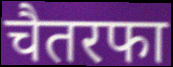
चैतरफा